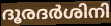
ദൂരദർശിനി